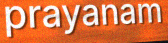
prayanam